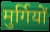
मुर्गियों